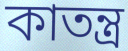
কাতন্ত্র